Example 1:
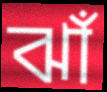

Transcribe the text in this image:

ঝাঁ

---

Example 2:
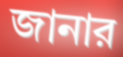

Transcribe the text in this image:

জানার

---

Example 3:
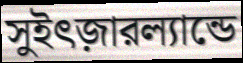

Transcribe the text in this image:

সুইৎজ়ারল্যান্ডে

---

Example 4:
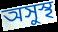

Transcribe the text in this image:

অসুস্থ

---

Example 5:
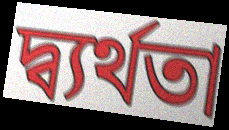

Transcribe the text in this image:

দ্ব্যর্থতা